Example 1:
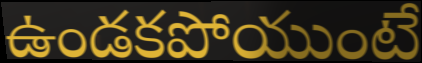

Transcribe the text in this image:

ఉండకపోయుంటే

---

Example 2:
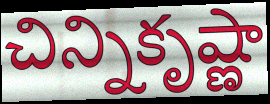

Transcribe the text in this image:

చిన్నికృష్ణా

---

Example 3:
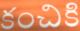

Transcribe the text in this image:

కంచికి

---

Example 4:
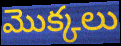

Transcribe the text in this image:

మొక్కలు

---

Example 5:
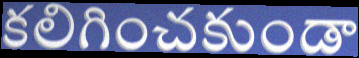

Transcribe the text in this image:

కలిగించకుండా